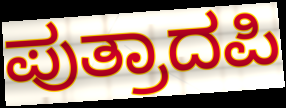
ಪುತ್ರಾದಪಿ